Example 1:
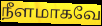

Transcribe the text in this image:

நீளமாகவே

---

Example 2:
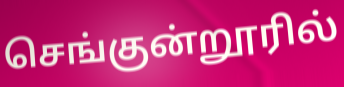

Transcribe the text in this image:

செங்குன்றூரில்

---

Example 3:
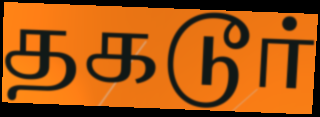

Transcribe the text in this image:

தகடூர்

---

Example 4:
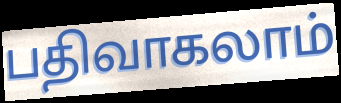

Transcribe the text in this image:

பதிவாகலாம்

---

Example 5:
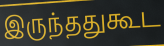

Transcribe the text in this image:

இருந்ததுகூட